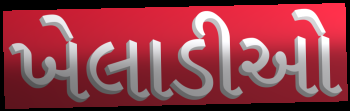
ખેલાડીઓ